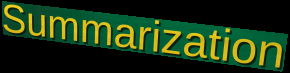
Summarization